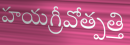
హయగ్రీవోత్పత్తి